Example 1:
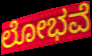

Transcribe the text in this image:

ಲೋಭವೆ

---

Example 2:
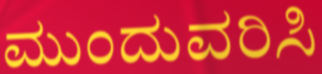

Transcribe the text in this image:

ಮುಂದುವರಿಸಿ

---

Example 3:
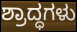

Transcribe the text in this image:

ಶ್ರಾದ್ಧಗಳು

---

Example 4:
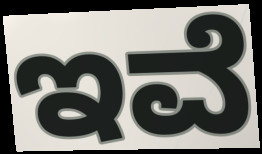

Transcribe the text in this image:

ಇವೆ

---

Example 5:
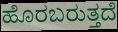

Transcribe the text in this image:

ಹೊರಬರುತ್ತದೆ